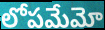
లోపమేమో